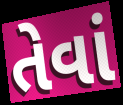
તેવાં